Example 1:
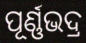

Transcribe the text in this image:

ପୂର୍ଣ୍ଣଭଦ୍ର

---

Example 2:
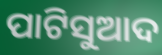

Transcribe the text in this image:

ପାଟିସୁଆଦ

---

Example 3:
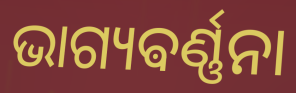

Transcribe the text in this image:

ଭାଗ୍ୟଵର୍ଣ୍ଣନା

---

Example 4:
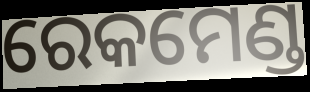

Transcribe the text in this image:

ରେକମେଣ୍ଡ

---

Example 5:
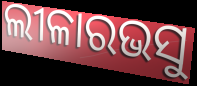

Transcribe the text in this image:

ଲୀଳାରଭସୁ